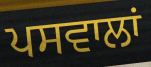
ਪਸਵਾਲਾਂ